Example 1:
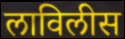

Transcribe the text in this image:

लाविलीस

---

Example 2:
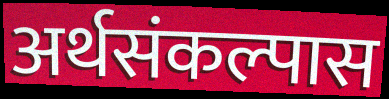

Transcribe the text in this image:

अर्थसंकल्पास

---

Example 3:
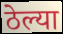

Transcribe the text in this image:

ठेल्या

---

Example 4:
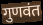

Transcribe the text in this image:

गुणवंत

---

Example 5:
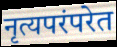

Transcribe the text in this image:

नृत्यपरंपरेत